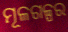
ମୂଳଗଳ୍ପର